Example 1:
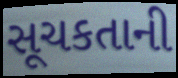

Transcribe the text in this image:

સૂચકતાની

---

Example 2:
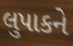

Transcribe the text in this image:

લુપાકને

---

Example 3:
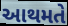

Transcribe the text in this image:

આથમતે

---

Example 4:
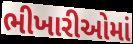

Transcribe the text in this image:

ભીખારીઓમાં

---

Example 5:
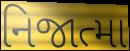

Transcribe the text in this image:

નિજાત્મા